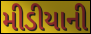
મીડીયાની